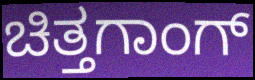
ಚಿತ್ತಗಾಂಗ್